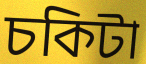
চকিটা